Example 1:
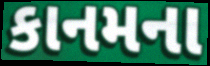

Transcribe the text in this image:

કાનમના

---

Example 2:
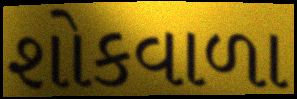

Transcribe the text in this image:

શોકવાળા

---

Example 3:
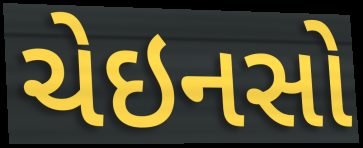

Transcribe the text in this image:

ચેઇનસો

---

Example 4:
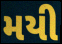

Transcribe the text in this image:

મયી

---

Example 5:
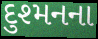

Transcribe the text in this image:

દુશ્મનના